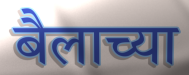
बैलाच्या